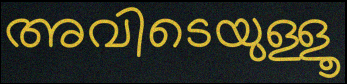
അവിടെയുള്ളൂ